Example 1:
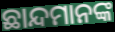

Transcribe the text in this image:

ଛାନ୍ଦମାନଙ୍କ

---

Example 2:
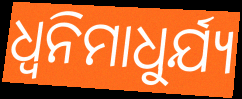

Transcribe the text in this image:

ଧ୍ୱନିମାଧୁର୍ଯ୍ୟ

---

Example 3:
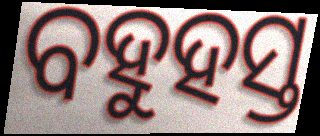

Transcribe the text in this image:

ବହୁହସ୍ତ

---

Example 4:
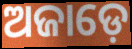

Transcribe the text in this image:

ଅଜାଡ଼େ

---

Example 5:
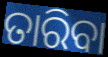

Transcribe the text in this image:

ତାରିବା